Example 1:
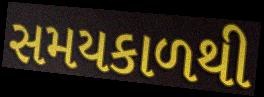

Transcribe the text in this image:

સમયકાળથી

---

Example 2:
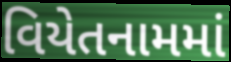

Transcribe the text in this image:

વિયેતનામમાં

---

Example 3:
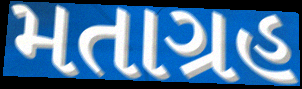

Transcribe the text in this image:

મતાગ્રહ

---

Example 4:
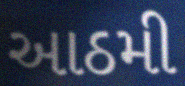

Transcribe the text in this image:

આઠમી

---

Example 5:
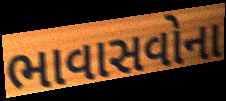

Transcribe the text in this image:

ભાવાસવોના